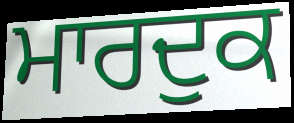
ਮਾਰਦੁਕ